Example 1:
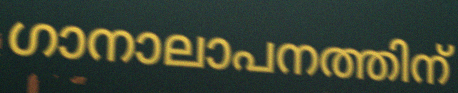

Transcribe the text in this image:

ഗാനാലാപനത്തിന്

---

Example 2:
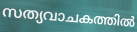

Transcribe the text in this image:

സത്യവാചകത്തിൽ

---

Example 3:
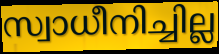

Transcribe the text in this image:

സ്വാധീനിച്ചില്ല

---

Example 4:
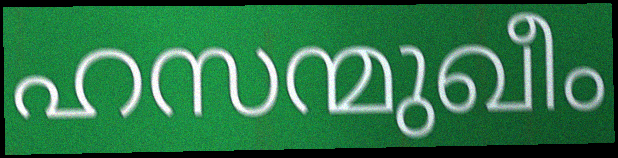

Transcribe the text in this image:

ഹസന്മുഖീം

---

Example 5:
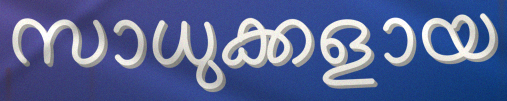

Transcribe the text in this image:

സാധുക്കളായ